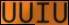
UUIU